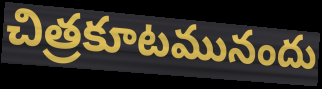
చిత్రకూటమునందు